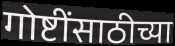
गोष्टींसाठीच्या